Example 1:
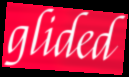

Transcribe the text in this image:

glided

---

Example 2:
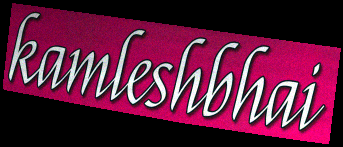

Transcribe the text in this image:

kamleshbhai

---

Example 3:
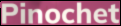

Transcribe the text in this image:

Pinochet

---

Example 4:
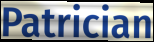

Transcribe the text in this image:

Patrician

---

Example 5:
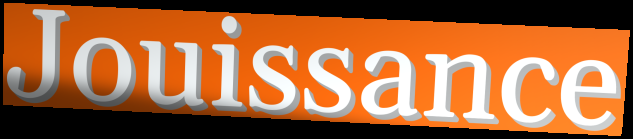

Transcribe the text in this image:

Jouissance